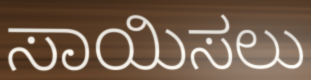
ಸಾಯಿಸಲು